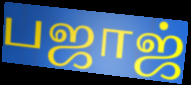
பஜாஜ்